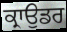
ਕ੍ਰਾਉਡਰ